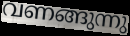
വണങ്ങുന്നു